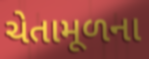
ચેતામૂળના